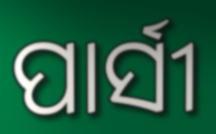
ପାର୍ସୀ